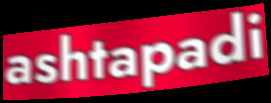
ashtapadi